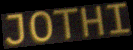
JOTHI